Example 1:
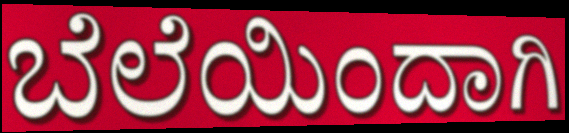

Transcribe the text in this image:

ಬೆಲೆಯಿಂದಾಗಿ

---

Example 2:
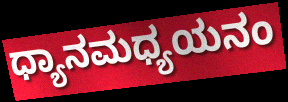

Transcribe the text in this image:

ಧ್ಯಾನಮಧ್ಯಯನಂ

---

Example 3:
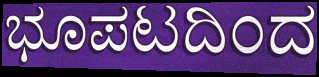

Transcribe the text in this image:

ಭೂಪಟದಿಂದ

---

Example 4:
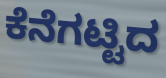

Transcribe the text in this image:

ಕೆನೆಗಟ್ಟಿದ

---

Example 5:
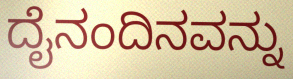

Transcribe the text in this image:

ದೈನಂದಿನವನ್ನು